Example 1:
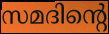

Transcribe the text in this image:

സമദിന്റെ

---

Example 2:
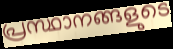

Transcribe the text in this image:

പ്രസ്ഥാനങ്ങളുടെ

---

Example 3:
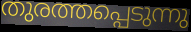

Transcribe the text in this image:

തുരത്തപ്പെടുന്നു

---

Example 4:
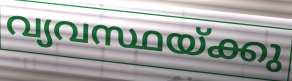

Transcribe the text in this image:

വ്യവസ്ഥയ്ക്കു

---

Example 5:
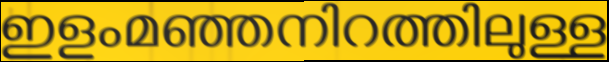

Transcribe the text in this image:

ഇളംമഞ്ഞനിറത്തിലുള്ള